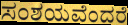
ಸಂಶಯವೆಂದರೆ